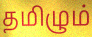
தமிழும்